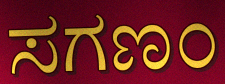
ಸಗಣಂ